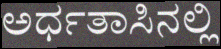
ಅರ್ಧತಾಸಿನಲ್ಲಿ